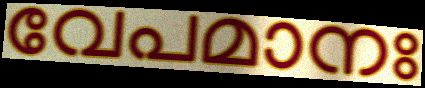
വേപമാനഃ